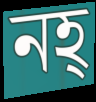
নহ্